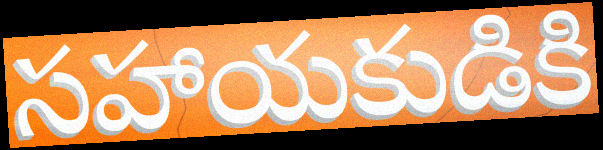
సహాయకుడికి